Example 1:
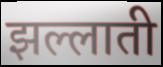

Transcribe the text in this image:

झल्लाती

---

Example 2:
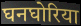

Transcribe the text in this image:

घनघोरिया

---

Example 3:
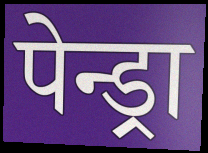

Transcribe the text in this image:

पेन्ड्रा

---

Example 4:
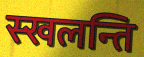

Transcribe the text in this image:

स्खलन्ति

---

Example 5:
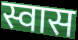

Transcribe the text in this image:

स्वास